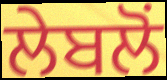
ਲੇਬਲੋਂ